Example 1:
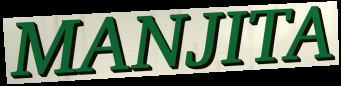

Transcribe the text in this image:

MANJITA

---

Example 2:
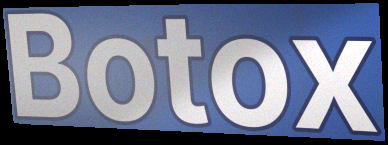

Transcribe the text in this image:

Botox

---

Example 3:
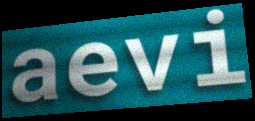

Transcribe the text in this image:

aevi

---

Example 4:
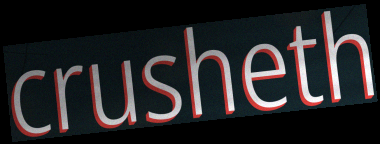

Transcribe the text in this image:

crusheth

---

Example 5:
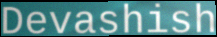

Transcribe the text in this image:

Devashish